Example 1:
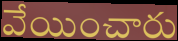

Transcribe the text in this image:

వేయించారు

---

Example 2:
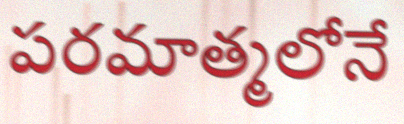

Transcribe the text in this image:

పరమాత్మలోనే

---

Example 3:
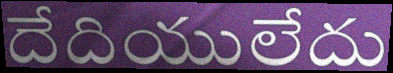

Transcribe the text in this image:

దేదియులేదు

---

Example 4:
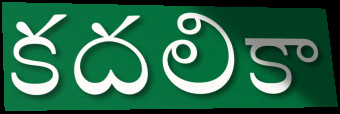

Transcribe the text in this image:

కదలికా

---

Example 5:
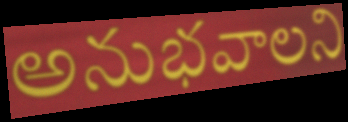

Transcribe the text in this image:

అనుభవాలని